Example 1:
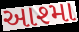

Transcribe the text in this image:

આશ્મા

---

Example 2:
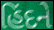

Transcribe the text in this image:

હિંદને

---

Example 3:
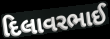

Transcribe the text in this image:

દિલાવરભાઈ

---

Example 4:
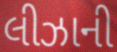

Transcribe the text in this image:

લીઝાની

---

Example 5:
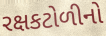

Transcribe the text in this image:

રક્ષકટોળીનો